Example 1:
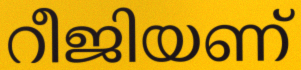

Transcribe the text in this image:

റീജിയണ്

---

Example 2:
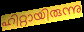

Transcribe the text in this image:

ഹിറ്റായിരുന്നു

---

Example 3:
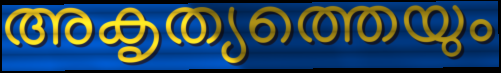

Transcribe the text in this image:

അകൃത്യത്തെയും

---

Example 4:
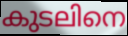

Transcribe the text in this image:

കുടലിനെ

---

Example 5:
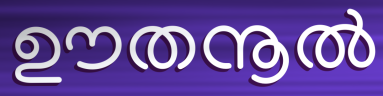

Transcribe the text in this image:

ഊതനൂൽ